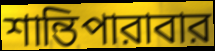
শান্তিপারাবার